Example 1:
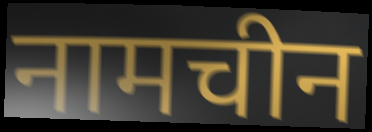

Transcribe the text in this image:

नामचीन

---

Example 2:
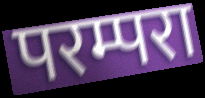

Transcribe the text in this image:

परम्परा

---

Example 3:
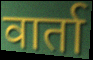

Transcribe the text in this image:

वार्ता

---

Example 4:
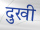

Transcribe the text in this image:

दुखी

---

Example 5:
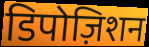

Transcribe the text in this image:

डिपोज़िशन